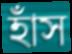
হাঁস